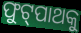
ଫୁଟ୍‌ପାଥକୁ